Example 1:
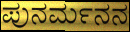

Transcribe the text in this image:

ಪುನರ್ಮನನ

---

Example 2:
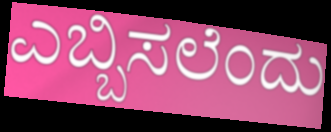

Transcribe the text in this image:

ಎಬ್ಬಿಸಲೆಂದು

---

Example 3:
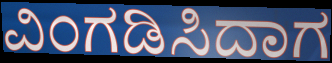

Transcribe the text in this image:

ವಿಂಗಡಿಸಿದಾಗ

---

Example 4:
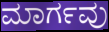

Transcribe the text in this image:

ಮಾರ್ಗವು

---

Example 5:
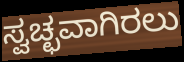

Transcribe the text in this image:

ಸ್ವಚ್ಛವಾಗಿರಲು